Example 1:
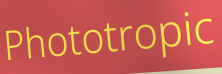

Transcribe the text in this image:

Phototropic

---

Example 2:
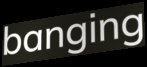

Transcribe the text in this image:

banging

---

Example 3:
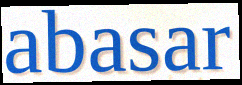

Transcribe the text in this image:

abasar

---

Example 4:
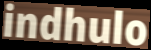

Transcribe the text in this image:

indhulo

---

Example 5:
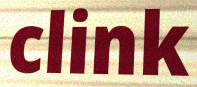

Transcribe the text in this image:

clink